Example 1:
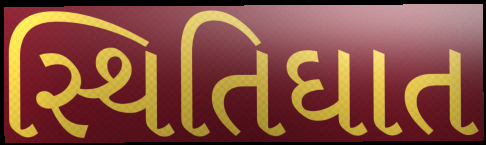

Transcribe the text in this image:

સ્થિતિઘાત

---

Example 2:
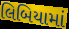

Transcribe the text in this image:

લિબિયામાં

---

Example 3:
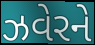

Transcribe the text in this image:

ઝવેરને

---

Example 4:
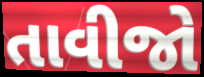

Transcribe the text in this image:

તાવીજો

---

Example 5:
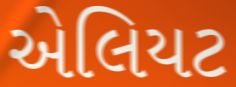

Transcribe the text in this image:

એલિયટ